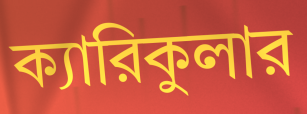
ক্যারিকুলার